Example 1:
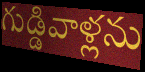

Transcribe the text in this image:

గుడ్డివాళ్లను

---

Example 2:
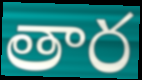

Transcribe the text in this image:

తార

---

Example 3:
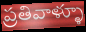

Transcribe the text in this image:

ప్రతివాళ్ళూ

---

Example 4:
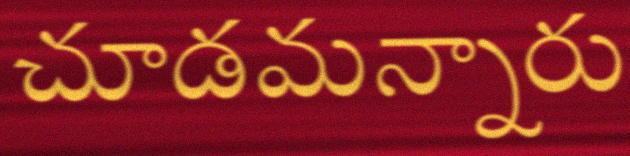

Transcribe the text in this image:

చూడమన్నారు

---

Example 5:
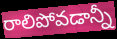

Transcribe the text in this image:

రాలిపోవడాన్నీ